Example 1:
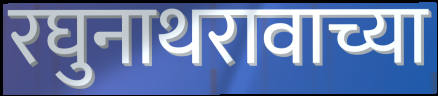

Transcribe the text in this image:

रघुनाथरावाच्या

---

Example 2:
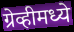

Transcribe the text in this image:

ग्रेव्हीमध्ये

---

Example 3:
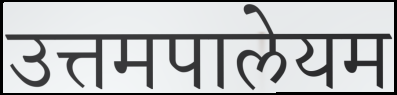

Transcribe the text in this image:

उत्तमपालेयम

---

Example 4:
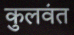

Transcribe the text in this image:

कुलवंत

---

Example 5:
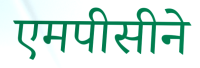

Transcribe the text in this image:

एमपीसीने